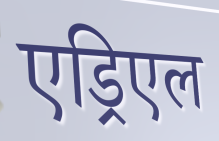
एड्रिएल